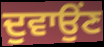
ਦੁਵਾਉਂਣ